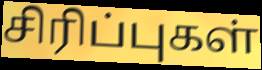
சிரிப்புகள்